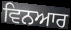
ਵਿਨਆਰ